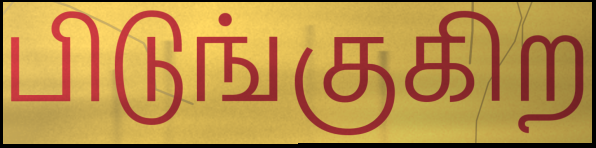
பிடுங்குகிற